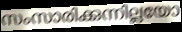
സംസാരിക്കുന്നില്ലയോ